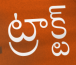
ట్రాక్ట్